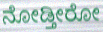
ನೋಡ್ತೀರೋ